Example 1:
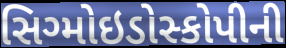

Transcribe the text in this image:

સિગ્મોઇડોસ્કોપીની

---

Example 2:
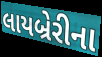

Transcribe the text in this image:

લાયબ્રેરીના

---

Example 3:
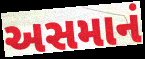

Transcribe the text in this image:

અસમાનં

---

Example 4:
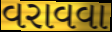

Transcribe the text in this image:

વરાવવા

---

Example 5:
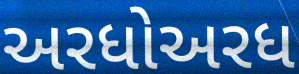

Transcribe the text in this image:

અરધોઅરધ